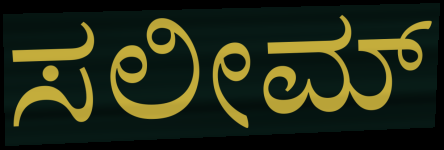
ಸಲೀಮ್